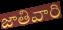
జాతివారి